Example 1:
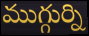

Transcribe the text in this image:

ముగ్గుర్ని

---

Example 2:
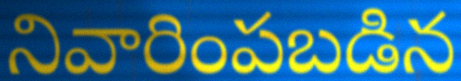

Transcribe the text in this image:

నివారింపబడిన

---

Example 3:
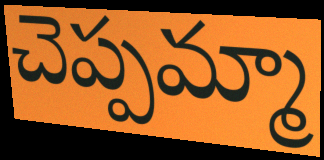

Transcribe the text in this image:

చెప్పమ్మా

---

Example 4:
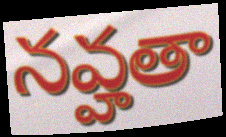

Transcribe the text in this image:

నవ్హతా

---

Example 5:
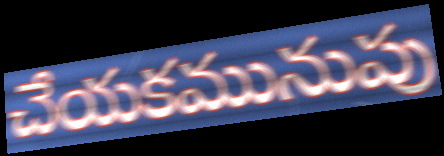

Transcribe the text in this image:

చేయకమునుపు